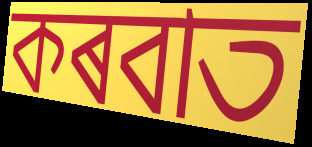
কৰবাত